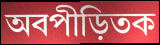
অবপীড়িতক